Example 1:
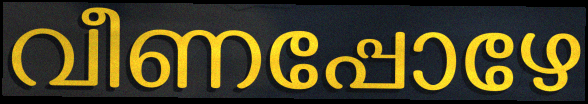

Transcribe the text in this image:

വീണപ്പോഴേ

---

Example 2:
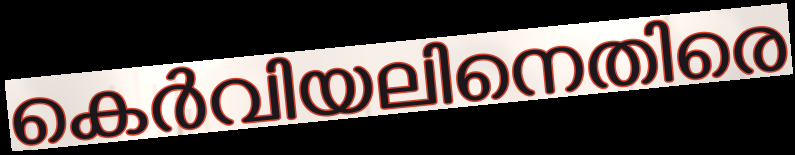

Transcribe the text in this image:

കെർവിയലിനെതിരെ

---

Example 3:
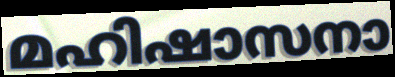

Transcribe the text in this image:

മഹിഷാസനാ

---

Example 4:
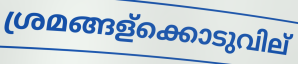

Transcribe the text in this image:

ശ്രമങ്ങള്ക്കൊടുവില്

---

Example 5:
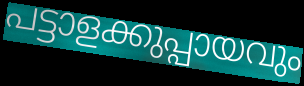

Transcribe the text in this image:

പട്ടാളക്കുപ്പായവും